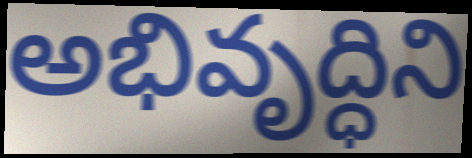
అభివృద్ధిని